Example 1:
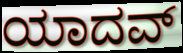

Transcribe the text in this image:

ಯಾದವ್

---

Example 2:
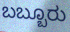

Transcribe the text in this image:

ಬಬ್ಬೂರು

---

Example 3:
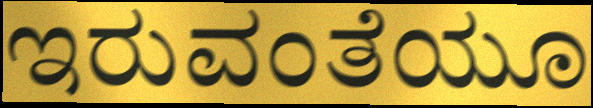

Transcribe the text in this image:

ಇರುವಂತೆಯೂ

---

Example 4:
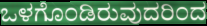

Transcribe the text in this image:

ಒಳಗೊಂಡಿರುವುದರಿಂದ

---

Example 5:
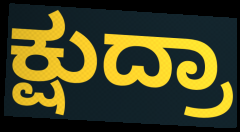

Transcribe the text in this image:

ಕ್ಷುದ್ರಾ